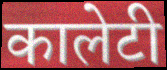
कालेटी